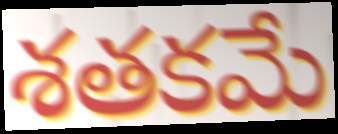
శతకమే